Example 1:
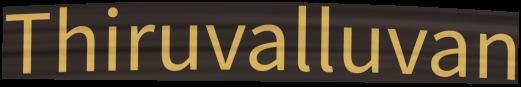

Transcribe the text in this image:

Thiruvalluvan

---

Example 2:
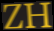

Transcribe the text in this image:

ZH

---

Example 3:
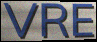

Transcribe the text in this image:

VRE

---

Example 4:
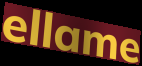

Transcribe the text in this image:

ellame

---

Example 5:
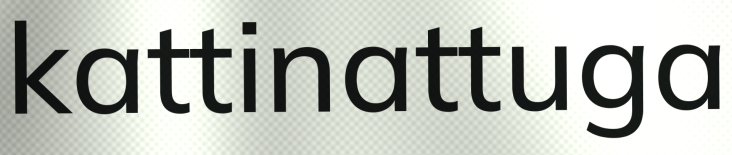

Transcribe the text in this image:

kattinattuga